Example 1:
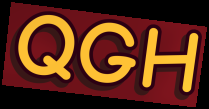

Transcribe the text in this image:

QGH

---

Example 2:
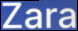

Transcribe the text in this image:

Zara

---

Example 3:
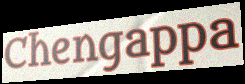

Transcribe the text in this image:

Chengappa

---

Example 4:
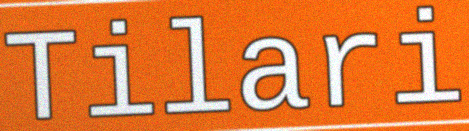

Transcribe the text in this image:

Tilari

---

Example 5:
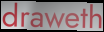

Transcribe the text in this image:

draweth